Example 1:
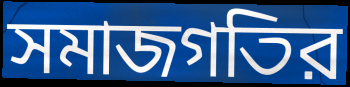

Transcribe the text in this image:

সমাজগতির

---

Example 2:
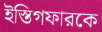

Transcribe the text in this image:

ইস্তিগফারকে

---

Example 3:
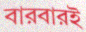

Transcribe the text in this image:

বারবারই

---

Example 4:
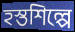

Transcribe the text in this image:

হস্তশিল্পে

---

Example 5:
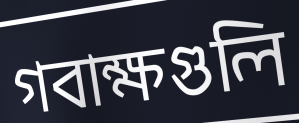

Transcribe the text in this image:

গবাক্ষগুলি